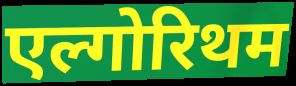
एल्गोरिथम